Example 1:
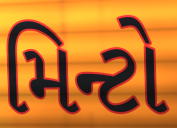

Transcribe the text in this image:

મિન્ટો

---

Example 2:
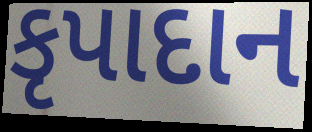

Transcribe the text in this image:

કૃપાદાન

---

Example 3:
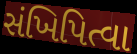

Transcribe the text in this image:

સંખિપિત્વા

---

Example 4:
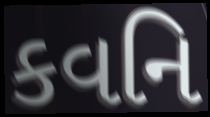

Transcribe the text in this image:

કવનિ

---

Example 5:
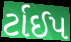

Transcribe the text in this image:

ર્ટાઈપ